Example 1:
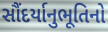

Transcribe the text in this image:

સૌંદર્યાનુભૂતિનો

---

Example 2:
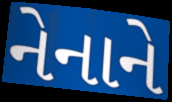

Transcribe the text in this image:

નેનાને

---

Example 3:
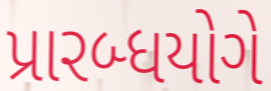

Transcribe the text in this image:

પ્રારબ્ધયોગે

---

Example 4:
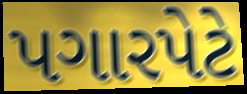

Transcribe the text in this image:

પગારપેટે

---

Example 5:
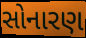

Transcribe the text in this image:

સોનારણ